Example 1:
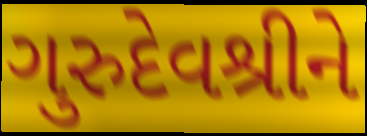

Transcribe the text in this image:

ગુરુદેવશ્રીને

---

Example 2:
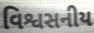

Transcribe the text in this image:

વિશ્વસનીય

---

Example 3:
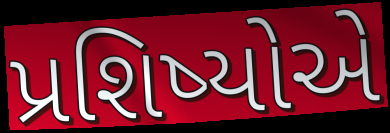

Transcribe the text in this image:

પ્રશિષ્યોએ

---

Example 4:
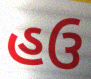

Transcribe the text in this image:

હઉ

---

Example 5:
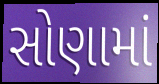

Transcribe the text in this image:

સોણામાં